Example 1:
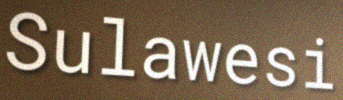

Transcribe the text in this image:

Sulawesi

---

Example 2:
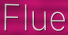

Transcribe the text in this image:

Flue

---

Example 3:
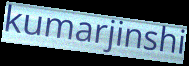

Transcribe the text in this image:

kumarjinshi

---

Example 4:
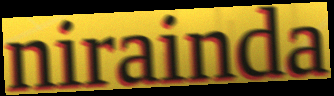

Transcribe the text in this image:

nirainda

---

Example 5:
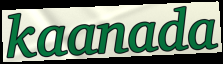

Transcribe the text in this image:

kaanada